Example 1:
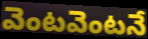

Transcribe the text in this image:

వెంటవెంటనే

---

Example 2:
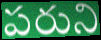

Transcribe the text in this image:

పరుని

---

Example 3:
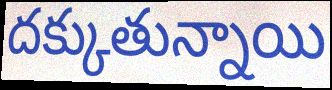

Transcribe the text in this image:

దక్కుతున్నాయి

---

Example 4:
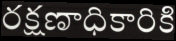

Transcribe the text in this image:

రక్షణాధికారికి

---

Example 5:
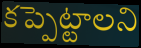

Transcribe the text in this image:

కప్పెట్టాలని